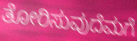
ತೋರಿಸುವುದೆಮಗೆ